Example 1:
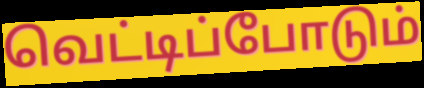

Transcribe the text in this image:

வெட்டிப்போடும்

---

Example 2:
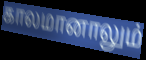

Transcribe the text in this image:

காலமானாலும்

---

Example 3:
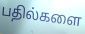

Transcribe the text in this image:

பதில்களை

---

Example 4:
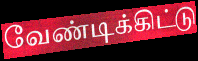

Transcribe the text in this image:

வேண்டிக்கிட்டு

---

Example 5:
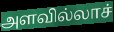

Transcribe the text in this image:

அளவில்லாச்